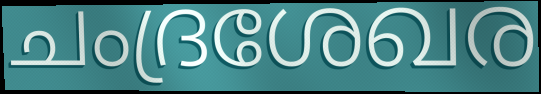
ചംദ്രശേഖര